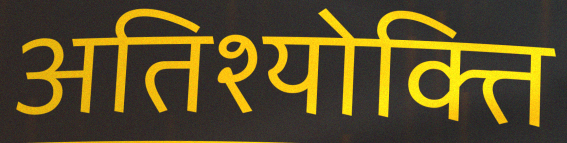
अतिश्योक्ति